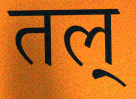
तल्